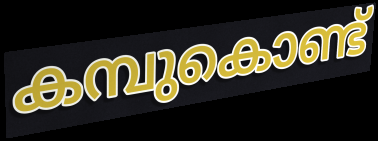
കമ്പുകൊണ്ട്